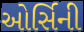
ઓર્સિની